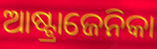
ଆଷ୍ଟ୍ରାଜେନିକା